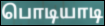
பொடியாடி